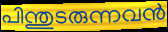
പിന്തുടരുന്നവൻ